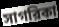
সাগরিকা